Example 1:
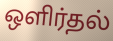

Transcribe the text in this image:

ஒளிர்தல்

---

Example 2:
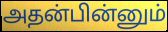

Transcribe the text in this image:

அதன்பின்னும்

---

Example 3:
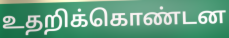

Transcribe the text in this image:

உதறிக்கொண்டன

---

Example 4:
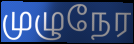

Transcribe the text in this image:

முழுநேர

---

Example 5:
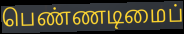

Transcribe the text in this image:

பெண்ணடிமைப்